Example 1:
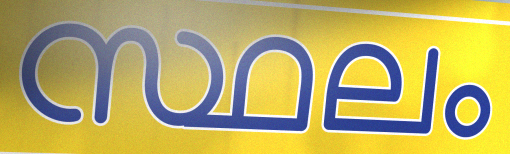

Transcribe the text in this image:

സ്ഥലം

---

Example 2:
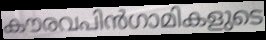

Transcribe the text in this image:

കൗരവപിൻഗാമികളുടെ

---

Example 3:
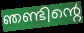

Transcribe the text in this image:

ഞണ്ടിന്റെ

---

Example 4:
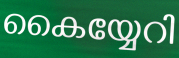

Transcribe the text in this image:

കൈയ്യേറി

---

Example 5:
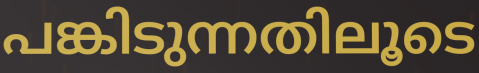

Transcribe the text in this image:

പങ്കിടുന്നതിലൂടെ